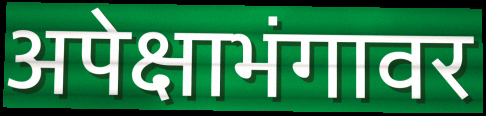
अपेक्षाभंगावर